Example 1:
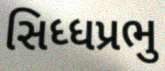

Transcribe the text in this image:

સિધ્ધપ્રભુ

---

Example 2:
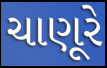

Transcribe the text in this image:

ચાણૂરે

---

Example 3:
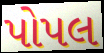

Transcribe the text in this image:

પોપલ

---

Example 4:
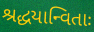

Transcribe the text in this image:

શ્રદ્ધયાન્વિતાઃ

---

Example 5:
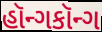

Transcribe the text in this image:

હૉન્ગકૉન્ગ